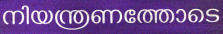
നിയന്ത്രണത്തോടെ